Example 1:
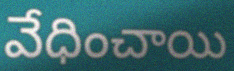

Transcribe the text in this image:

వేధించాయి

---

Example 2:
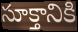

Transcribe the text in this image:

సూక్తానికి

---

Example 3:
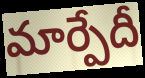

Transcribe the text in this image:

మార్పేదీ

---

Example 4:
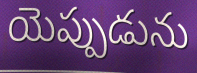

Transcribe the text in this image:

యెప్పుడును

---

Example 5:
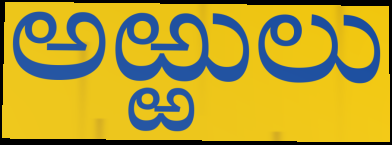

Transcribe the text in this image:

అఱ్ఱులు